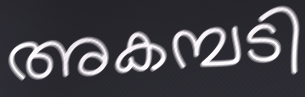
അകമ്പടി